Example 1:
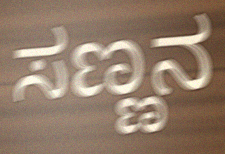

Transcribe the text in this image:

ಸಣ್ಣನ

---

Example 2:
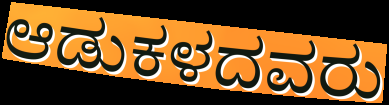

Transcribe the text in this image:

ಆಡುಕಳದವರು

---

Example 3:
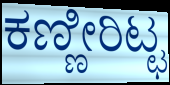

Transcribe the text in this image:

ಕಣ್ಣೀರಿಟ್ಟ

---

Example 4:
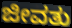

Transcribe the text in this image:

ಜೀವತು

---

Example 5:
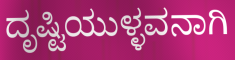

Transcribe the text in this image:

ದೃಷ್ಟಿಯುಳ್ಳವನಾಗಿ